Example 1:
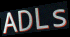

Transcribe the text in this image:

ADLs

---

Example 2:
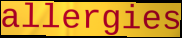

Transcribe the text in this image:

allergies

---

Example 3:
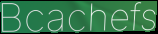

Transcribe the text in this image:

Bcachefs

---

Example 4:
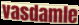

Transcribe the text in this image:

vasdamle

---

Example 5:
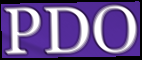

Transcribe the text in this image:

PDO